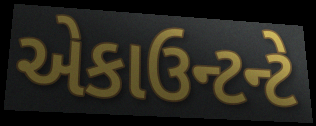
એકાઉન્ટન્ટે